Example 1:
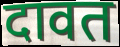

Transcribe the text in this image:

दावत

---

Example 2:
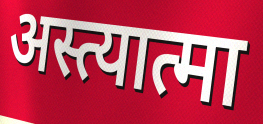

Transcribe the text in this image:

अस्त्यात्मा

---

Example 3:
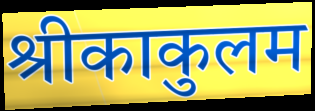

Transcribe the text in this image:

श्रीकाकुलम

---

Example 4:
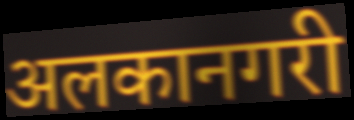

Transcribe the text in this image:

अलकानगरी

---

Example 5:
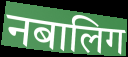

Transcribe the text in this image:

नबालिग